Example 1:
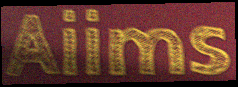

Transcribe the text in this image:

Aiims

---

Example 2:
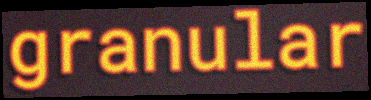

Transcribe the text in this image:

granular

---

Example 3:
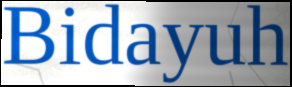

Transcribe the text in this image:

Bidayuh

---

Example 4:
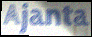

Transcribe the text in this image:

Ajanta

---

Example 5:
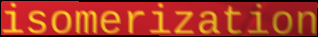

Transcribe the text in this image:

isomerization